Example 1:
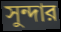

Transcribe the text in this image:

সুন্দার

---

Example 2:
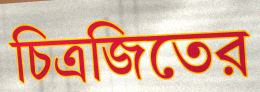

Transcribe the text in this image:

চিত্রজিতের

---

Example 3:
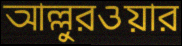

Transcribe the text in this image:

আল্লুরওয়ার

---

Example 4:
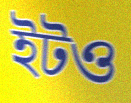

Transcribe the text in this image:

ইটও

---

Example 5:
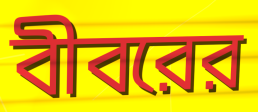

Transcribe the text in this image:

বীবরের